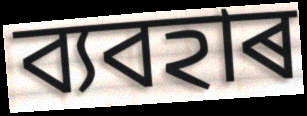
ব্যবহাৰ